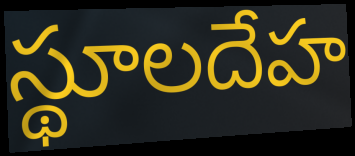
స్థూలదేహ